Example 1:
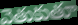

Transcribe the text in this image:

వెతుకుతూ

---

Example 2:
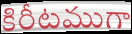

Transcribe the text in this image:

కిరీటముగా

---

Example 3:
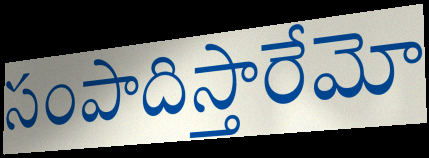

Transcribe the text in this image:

సంపాదిస్తారేమో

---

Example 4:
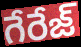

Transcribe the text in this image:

గేరేజ్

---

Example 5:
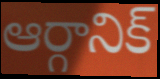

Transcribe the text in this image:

ఆర్గానిక్